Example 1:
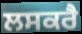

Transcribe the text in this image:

ਲਸਕਰੈ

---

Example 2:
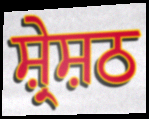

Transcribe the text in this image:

ਸ਼੍ਰੇਸ਼ਠ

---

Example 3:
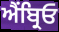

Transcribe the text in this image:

ਐਂਬ੍ਰਿਓ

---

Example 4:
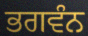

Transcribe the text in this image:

ਭਗਵੰਨ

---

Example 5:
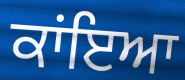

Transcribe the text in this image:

ਕਾਂਇਆ